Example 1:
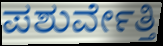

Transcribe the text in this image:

ಪಶುರ್ವೇತ್ತಿ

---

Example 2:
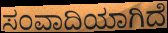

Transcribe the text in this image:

ಸಂವಾದಿಯಾಗಿದೆ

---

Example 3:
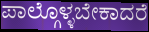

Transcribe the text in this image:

ಪಾಲ್ಗೊಳ್ಳಬೇಕಾದರೆ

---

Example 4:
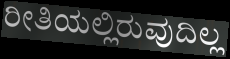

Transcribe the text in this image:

ರೀತಿಯಲ್ಲಿರುವುದಿಲ್ಲ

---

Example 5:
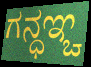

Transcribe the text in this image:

ಗನ್ಧಞ್ಚ